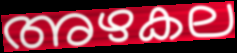
അഴകല